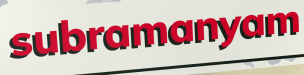
subramanyam